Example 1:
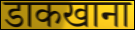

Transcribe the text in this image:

डाकखाना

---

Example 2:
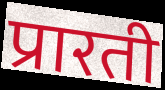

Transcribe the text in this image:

प्रारती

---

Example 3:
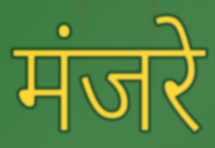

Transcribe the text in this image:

मंजरे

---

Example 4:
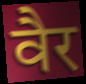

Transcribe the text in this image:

वैर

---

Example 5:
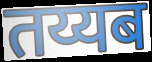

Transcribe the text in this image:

तय्यब